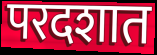
परदशात